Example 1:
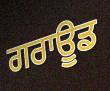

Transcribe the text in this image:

ਗਰਾਊਡ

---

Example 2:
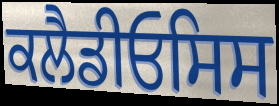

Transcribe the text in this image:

ਕਲੈਡੀਓਸਿਸ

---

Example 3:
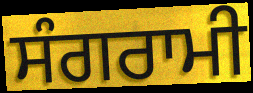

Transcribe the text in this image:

ਸੰਗਰਾਮੀ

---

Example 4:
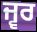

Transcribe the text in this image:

ਜ੍ਵਰ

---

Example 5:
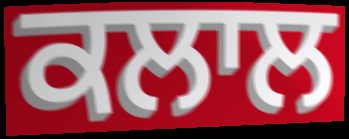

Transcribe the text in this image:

ਕਲਾਲ